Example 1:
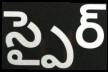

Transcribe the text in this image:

స్పైర్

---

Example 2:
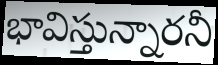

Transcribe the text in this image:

భావిస్తున్నారనీ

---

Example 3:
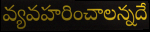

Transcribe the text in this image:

వ్యవహరించాలన్నదే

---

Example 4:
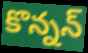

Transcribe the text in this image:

కొన్నన్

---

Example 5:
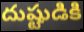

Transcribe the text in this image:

దుష్టుడికి